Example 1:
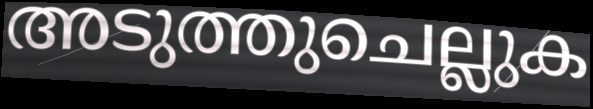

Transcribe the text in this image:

അടുത്തുചെല്ലുക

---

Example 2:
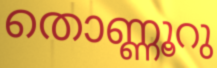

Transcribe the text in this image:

തൊണ്ണൂറു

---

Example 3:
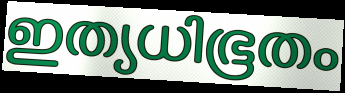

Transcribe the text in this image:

ഇത്യധിഭൂതം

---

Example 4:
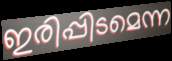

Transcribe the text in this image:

ഇരിപ്പിടമെന്ന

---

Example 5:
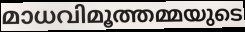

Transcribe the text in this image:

മാധവിമൂത്തമ്മയുടെ